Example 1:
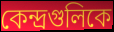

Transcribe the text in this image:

কেন্দ্রগুলিকে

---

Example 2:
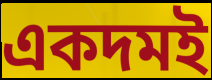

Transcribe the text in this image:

একদমই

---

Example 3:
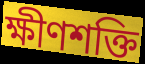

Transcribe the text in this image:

ক্ষীণশক্তি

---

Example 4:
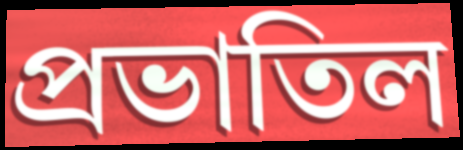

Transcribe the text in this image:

প্রভাতিল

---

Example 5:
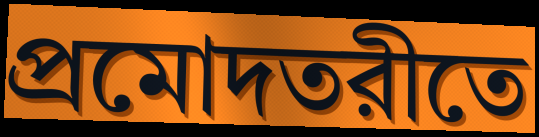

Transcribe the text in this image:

প্রমোদতরীতে